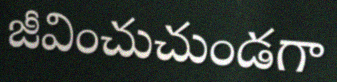
జీవించుచుండగా